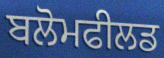
ਬਲੋਮਫੀਲਡ